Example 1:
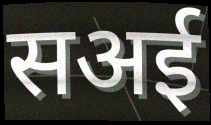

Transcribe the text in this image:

सअई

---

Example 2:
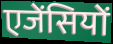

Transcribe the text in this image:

एजेंसियों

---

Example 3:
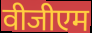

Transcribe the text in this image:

वीजीएम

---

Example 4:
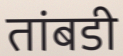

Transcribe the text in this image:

तांबडी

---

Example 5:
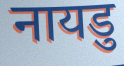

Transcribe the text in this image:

नायडु